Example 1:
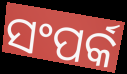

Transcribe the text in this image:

ସଂପର୍କ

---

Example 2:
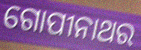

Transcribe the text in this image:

ଗୋପୀନାଥର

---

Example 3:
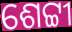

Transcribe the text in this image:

ଶେଟ୍ଟୀ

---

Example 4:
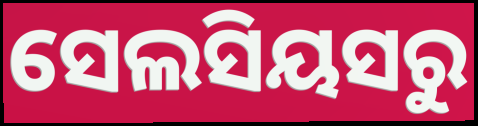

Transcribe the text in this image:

ସେଲସିୟସରୁ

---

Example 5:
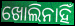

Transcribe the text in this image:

ଖୋଲିନାହିଁ